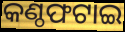
କଣ୍ଠଫଟାଇ